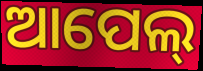
ଆପେଲ୍